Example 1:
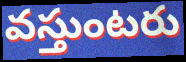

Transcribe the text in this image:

వస్తుంటరు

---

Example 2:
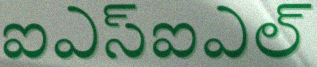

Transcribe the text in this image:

ఐఎస్ఐఎల్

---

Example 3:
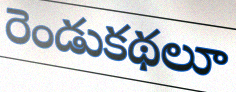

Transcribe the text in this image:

రెండుకథలూ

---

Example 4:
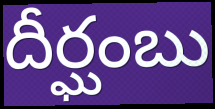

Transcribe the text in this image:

దీర్ఘంబు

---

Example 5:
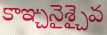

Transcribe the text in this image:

కాఞ్చనైశ్చైవ